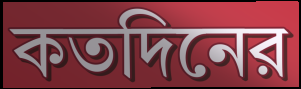
কতদিনের